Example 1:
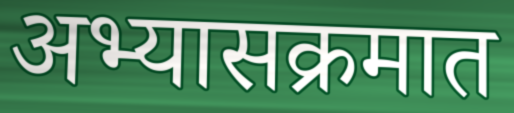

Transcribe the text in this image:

अभ्यासक्रमात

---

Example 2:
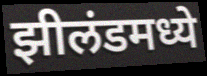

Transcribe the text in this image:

झीलंडमध्ये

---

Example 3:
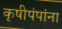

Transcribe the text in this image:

कृषीपंपांना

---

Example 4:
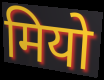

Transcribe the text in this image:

मियो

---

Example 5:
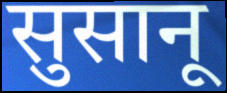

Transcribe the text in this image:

सुसानू